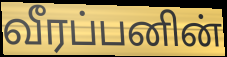
வீரப்பனின்